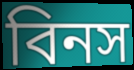
বিনস